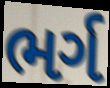
ભર્ગ